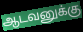
ஆடவனுக்கு